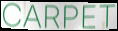
CARPET